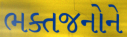
ભક્તજનોને